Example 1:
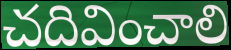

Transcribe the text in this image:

చదివించాలి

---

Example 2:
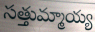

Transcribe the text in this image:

సత్తుమ్మాయ్య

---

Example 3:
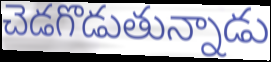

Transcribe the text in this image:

చెడగొడుతున్నాడు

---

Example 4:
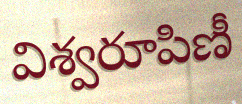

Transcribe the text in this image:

విశ్వరూపిణీ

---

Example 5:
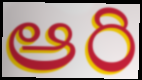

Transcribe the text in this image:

ఆరి